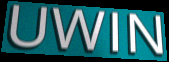
UWIN